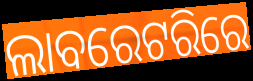
ଲାବରେଟରିରେ